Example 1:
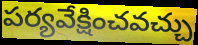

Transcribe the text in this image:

పర్యవేక్షించవచ్చు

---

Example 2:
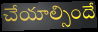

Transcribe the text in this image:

చేయాల్సిందే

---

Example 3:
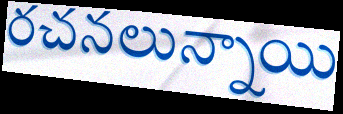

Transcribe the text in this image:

రచనలున్నాయి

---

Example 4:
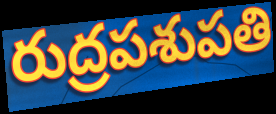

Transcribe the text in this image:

రుద్రపశుపతి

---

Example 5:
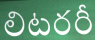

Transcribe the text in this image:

లిటరరీ